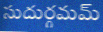
సుదుర్గమమ్